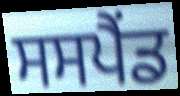
ਸਸਪੈੰਡ